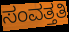
ಸಂವತ್ತತಿ